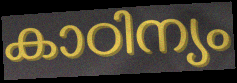
കാഠിന്യം